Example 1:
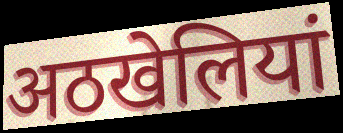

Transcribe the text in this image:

अठखेलियां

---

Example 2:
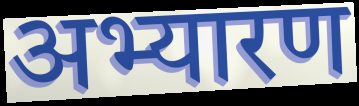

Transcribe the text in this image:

अभ्यारण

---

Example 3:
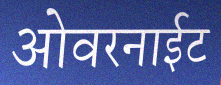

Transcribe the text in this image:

ओवरनाईट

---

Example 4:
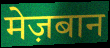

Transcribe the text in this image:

मेज़बान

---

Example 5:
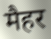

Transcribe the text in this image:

मैहर